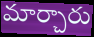
మార్చారు